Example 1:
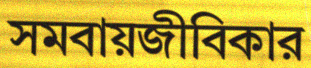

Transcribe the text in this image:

সমবায়জীবিকার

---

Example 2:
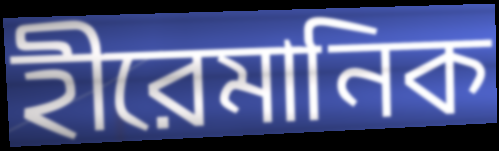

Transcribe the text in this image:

হীরেমানিক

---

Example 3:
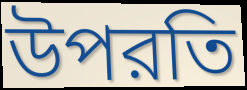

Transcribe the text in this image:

উপরতি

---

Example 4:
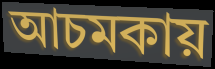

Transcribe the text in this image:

আচমকায়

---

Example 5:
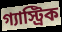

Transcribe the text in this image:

গ্যাস্ট্রিক